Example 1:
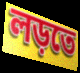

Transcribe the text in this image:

লড়তে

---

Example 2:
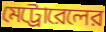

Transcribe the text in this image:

মেট্রোরেলের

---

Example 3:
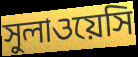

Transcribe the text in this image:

সুলাওয়েসি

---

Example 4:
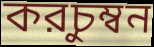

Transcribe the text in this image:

করচুম্বন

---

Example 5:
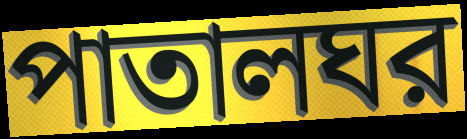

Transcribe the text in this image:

পাতালঘর